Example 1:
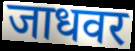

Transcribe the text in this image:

जाधवर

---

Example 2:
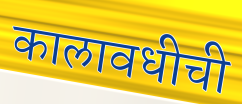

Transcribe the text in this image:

कालावधीची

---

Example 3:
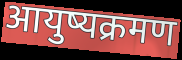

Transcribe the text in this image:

आयुष्यक्रमण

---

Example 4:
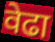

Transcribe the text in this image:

वेढा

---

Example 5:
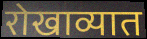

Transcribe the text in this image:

रोखाव्यात